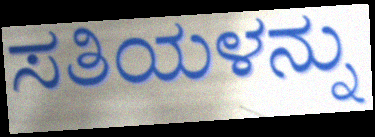
ಸತಿಯಳನ್ನು